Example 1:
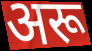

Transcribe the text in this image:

अरू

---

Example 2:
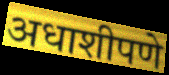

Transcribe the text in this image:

अधाशीपणे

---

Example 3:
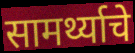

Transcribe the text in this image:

सामर्थ्याचे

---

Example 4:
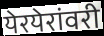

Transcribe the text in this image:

येरयेरांवरी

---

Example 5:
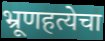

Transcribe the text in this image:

भ्रूणहत्येचा